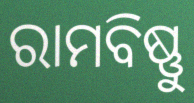
ରାମବିଷ୍ଣୁ